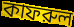
কাফরুল